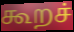
கூறச்